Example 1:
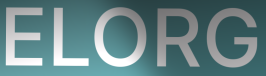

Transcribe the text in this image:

ELORG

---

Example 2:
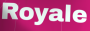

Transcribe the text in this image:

Royale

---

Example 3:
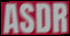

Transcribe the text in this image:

ASDR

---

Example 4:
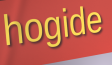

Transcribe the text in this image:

hogide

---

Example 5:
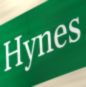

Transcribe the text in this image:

Hynes